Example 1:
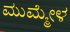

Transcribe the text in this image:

ಮುಮ್ಮೇಳ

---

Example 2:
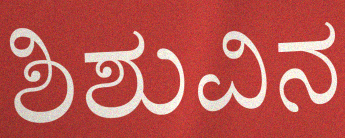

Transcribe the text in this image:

ಶಿಶುವಿನ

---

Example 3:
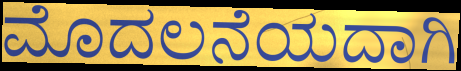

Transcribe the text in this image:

ಮೊದಲನೆಯದಾಗಿ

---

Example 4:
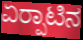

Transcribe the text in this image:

ಏರ‍್ಪಾಟಿನ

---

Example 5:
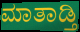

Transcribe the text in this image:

ಮಾತಾಡ್ತಿ